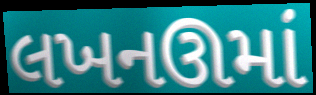
લખનઊમાં